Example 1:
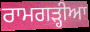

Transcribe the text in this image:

ਰਾਮਗੜ੍ਹੀਆ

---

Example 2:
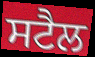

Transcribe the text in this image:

ਸਟੈਲ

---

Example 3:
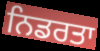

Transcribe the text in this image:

ਨਿਡਰਤਾ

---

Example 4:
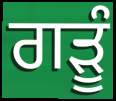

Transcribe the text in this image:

ਗੜੂੰ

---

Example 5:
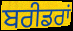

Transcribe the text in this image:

ਬਰੀਡਰਾਂ